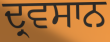
ਦ੍ਰਵਸਾਨ